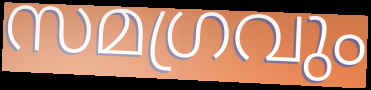
സമഗ്രവും